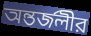
অন্তর্জলীর